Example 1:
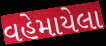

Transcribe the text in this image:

વહેમાયેલા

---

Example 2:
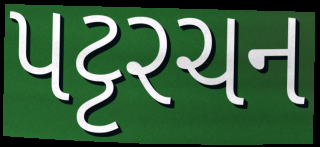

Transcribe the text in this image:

પટ્ટરચન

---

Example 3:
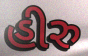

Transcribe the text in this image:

હીરુ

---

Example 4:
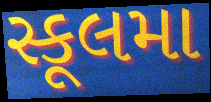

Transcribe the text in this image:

સ્કૂલમા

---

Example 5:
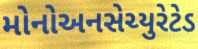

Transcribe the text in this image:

મોનોઅનસેચ્યુરેટેડ